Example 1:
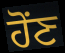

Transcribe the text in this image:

ਹੋਂਣ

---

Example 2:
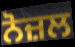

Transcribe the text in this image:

ਨੋਜ਼ਲ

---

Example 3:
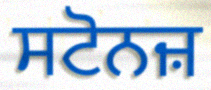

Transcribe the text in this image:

ਸਟੋਨਜ਼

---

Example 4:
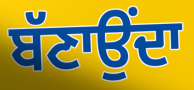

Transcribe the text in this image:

ਬੱਣਾਉਂਦਾ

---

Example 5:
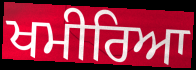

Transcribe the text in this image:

ਖਮੀਰਿਆ